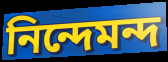
নিন্দেমন্দ